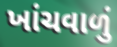
ખાંચવાળું